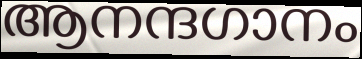
ആനന്ദഗാനം